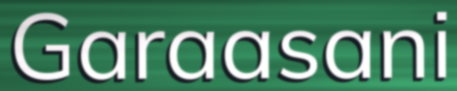
Garaasani